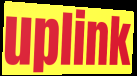
uplink